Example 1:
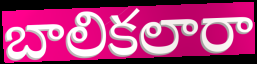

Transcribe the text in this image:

బాలికలారా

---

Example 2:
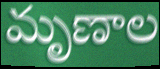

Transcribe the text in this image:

మృణాల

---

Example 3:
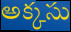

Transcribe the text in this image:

అక్కసు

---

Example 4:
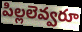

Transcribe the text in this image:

పిల్లలెవ్వరూ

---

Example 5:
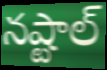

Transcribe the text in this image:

నష్టాల్